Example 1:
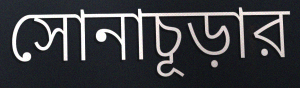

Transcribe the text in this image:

সোনাচূড়ার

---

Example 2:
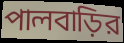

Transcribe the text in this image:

পালবাড়ির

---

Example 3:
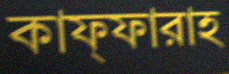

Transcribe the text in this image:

কাফ্ফারাহ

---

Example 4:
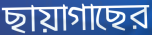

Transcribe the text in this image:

ছায়াগাছের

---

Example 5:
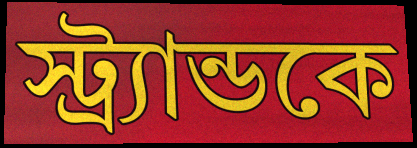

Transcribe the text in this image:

স্ট্র্যান্ডকে